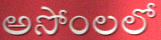
అసోంలలో